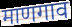
माणगाव